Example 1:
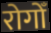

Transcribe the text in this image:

रोगोँ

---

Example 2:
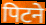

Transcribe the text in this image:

पिटने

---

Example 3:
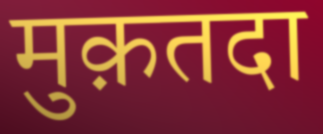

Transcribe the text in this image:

मुक़तदा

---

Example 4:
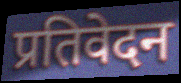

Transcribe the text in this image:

प्रतिवेदन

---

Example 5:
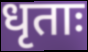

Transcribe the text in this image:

धृताः